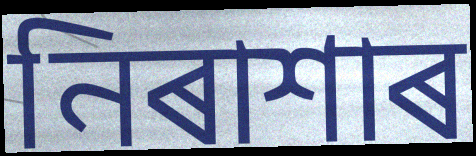
নিৰাশাৰ